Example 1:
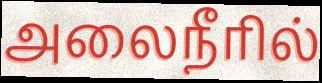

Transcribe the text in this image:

அலைநீரில்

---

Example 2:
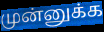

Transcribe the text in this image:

முன்னுக்க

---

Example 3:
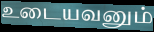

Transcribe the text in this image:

உடையவனும்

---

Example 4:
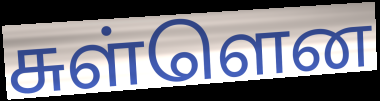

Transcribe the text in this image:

சுள்ளென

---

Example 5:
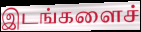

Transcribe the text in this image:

இடங்களைச்